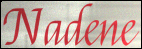
Nadene